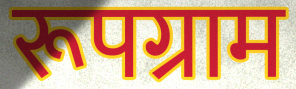
रूपग्राम